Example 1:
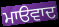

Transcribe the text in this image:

ਮਾੳਵਾਦ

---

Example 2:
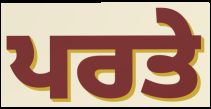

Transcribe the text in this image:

ਪਰਤੇ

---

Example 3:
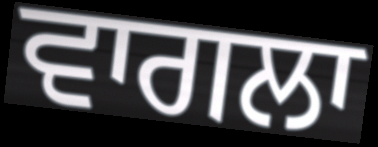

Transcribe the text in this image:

ਵਾਗਲਾ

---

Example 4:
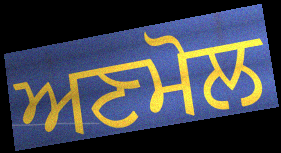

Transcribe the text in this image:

ਅਣਮੋਲ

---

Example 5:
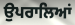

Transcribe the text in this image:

ਉਪਰਾਲਿਆਂ